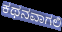
ಕಥನವಾಗಲಿ